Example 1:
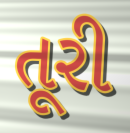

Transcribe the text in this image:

તૂરી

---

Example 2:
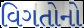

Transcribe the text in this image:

વિગતોનો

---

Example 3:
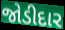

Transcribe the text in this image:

જોડીદાર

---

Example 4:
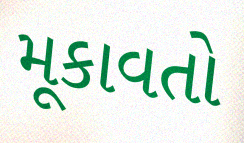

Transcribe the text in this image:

મૂકાવતો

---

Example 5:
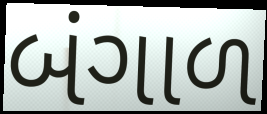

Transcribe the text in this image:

બંગાળ